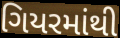
ગિયરમાંથી